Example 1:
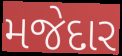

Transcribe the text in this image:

મજેદાર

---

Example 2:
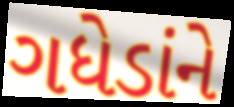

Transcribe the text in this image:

ગધેડાંને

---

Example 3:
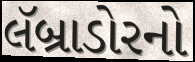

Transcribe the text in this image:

લૅબ્રાડોરનો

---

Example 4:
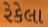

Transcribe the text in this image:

રેકેલા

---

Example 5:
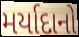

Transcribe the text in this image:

મર્યાદાનો